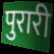
पुरारी